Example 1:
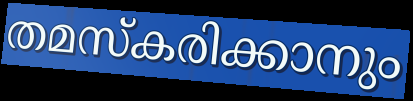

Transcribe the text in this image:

തമസ്കരിക്കാനും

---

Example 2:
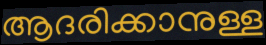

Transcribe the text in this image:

ആദരിക്കാനുള്ള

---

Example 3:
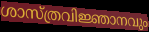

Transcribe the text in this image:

ശാസ്ത്രവിജ്ഞാനവും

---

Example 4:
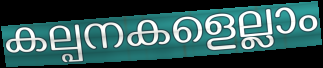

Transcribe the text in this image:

കല്പനകളെല്ലാം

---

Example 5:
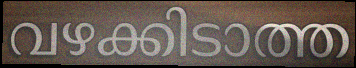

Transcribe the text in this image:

വഴക്കിടാത്ത